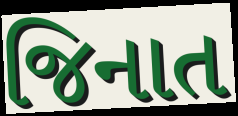
જિનાત